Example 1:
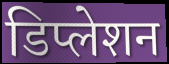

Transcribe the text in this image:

डिप्लेशन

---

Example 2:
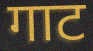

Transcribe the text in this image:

गाट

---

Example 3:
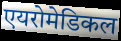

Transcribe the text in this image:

एयरोमेडिकल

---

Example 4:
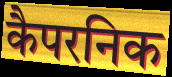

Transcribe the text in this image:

कैपरनिक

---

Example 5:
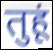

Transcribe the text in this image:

तुहूं